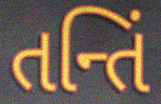
તન્તિં